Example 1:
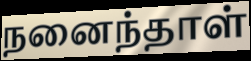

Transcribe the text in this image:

நனைந்தாள்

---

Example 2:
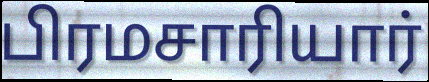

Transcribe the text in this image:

பிரமசாரியார்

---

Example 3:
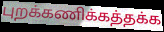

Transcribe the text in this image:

புறக்கணிக்கத்தக்க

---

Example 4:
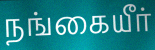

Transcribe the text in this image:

நங்கையீர்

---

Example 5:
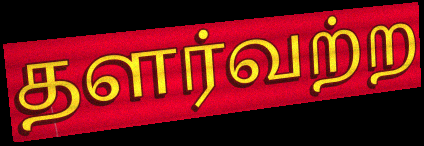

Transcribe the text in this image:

தளர்வற்ற